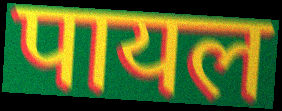
पायल